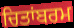
ਚਿਤਾਂਬਰਮ